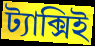
ট্যাক্সিই